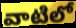
వాటిలో